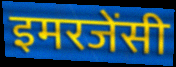
इमरजेंसी